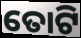
ତୋଟି